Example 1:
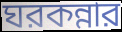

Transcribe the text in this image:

ঘরকন্নার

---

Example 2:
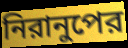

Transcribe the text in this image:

নিরানুপের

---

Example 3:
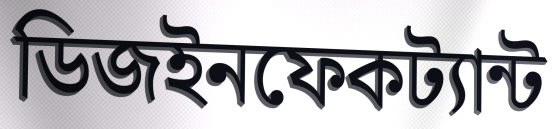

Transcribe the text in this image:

ডিজইনফেকট্যান্ট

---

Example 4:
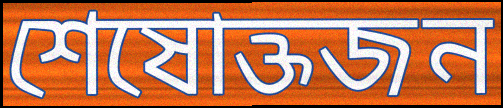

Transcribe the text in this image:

শেষোক্তজন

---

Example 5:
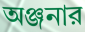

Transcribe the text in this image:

অঞ্জনার